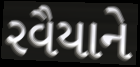
રવૈયાને